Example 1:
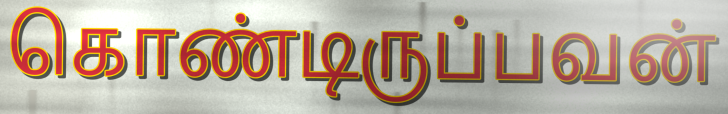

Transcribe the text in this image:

கொண்டிருப்பவன்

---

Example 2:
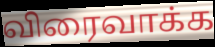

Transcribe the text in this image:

விரைவாக்க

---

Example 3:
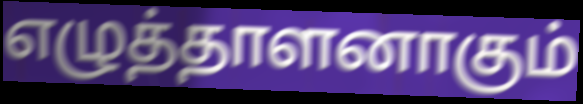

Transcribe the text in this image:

எழுத்தாளனாகும்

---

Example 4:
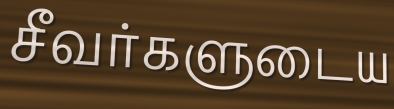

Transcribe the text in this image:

சீவர்களுடைய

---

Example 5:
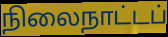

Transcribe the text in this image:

நிலைநாட்டப்